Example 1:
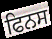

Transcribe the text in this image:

ਫਿਨਸ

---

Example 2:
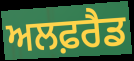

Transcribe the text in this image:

ਅਲਫ਼ਰੈਡ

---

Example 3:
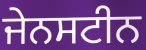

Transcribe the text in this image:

ਜੇਨਸਟੀਨ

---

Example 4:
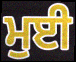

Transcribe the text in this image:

ਮੁਈ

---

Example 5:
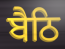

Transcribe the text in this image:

ਬੈਠਿ